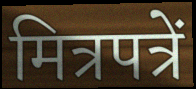
मित्रपत्रें